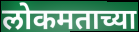
लोकमताच्या